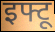
इफ्टू